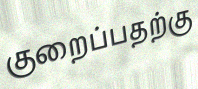
குறைப்பதற்கு